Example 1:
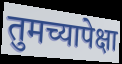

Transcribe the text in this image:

तुमच्यापेक्षा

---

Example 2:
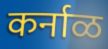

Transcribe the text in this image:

कर्नाळ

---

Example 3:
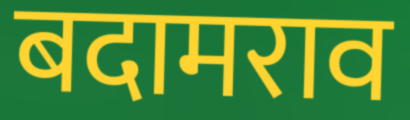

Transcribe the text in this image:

बदामराव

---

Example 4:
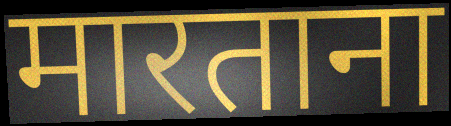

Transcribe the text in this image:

मारताना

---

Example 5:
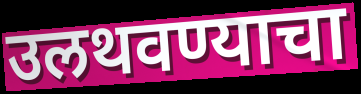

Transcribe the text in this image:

उलथवण्याचा